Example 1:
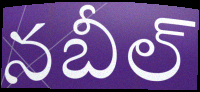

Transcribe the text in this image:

నబీల్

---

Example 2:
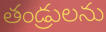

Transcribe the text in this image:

తండ్రులను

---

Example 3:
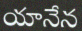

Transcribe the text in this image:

యానేన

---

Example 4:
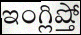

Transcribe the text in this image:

ఇంగ్లిష్తో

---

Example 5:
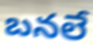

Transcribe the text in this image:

బనలే